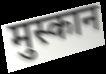
मुस्‍कान